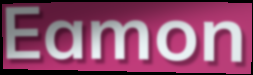
Eamon